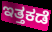
ಇತ್ತಕಡೆ